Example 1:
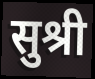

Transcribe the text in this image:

सुश्री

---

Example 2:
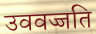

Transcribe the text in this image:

उववज्जति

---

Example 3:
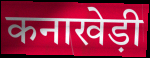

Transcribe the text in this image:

कनाखेड़ी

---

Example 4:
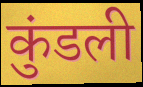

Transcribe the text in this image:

कुंडली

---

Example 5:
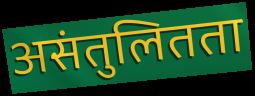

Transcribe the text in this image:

असंतुलितता